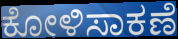
ಕೋಳಿಸಾಕಣೆ